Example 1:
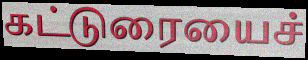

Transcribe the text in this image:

கட்டுரையைச்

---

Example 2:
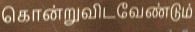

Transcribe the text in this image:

கொன்றுவிடவேண்டும்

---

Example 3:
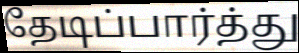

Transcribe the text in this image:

தேடிப்பார்த்து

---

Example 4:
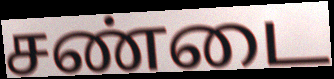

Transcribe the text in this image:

சண்டை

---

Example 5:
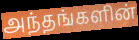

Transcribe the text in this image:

அந்தங்களின்